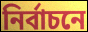
নিৰ্বাচনে